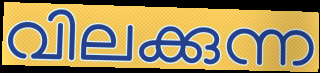
വിലക്കുന്ന